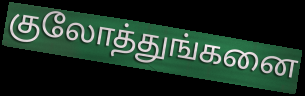
குலோத்துங்கனை